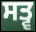
ਸਤ੍ਵ